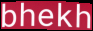
bhekh